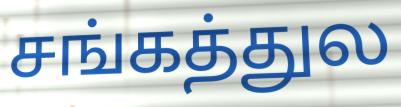
சங்கத்துல